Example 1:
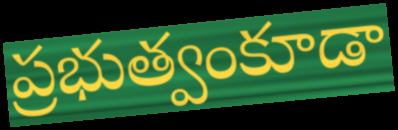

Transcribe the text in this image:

ప్రభుత్వంకూడా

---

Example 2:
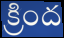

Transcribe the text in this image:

క్రింద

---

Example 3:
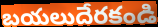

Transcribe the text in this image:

బయలుదేరకండి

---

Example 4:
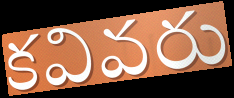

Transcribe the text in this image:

కవివరు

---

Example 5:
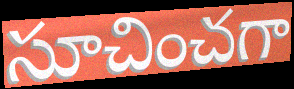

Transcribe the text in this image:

సూచించగా